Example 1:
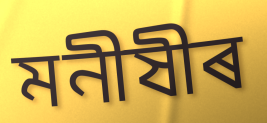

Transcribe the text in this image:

মনীষীৰ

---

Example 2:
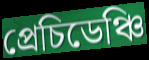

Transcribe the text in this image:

প্ৰেচিডেঞ্চি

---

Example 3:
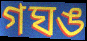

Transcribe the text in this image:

গঘঙ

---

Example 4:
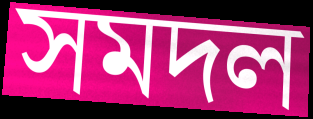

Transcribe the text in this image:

সমদল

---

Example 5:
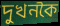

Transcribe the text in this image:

দুখনকৈ